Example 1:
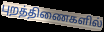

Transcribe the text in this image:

புறத்திணைகளில்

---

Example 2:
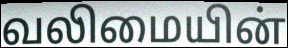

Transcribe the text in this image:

வலிமையின்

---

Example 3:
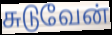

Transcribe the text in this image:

சுடுவேன்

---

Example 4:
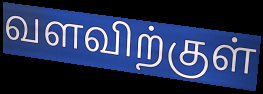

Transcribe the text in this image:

வளவிற்குள்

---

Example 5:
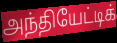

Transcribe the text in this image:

அந்தியேட்டிக்